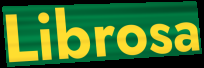
Librosa